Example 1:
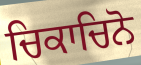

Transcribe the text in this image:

ਚਿਕਾਚਿਨੋ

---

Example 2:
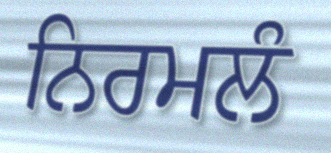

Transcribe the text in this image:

ਨਿਰਮਲੰ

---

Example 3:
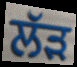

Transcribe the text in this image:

ਲੱੜ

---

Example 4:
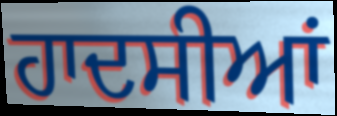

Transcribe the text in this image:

ਹਾਦਸੀਆਂ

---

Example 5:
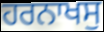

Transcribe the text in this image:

ਹਰਨਾਖਸੁ